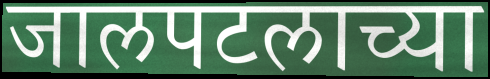
जालपटलाच्या